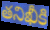
తనిఖీకి